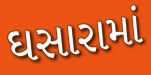
ઘસારામાં